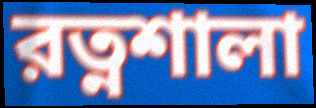
রত্নশালা